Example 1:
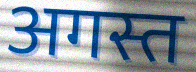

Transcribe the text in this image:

अगस्‍त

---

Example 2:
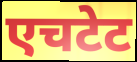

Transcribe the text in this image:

एचटेट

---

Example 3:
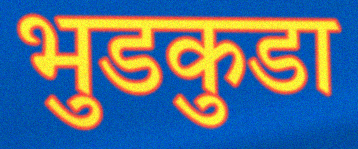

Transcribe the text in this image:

भुडकुडा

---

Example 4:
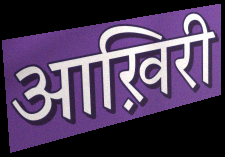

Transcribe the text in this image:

आख़िरी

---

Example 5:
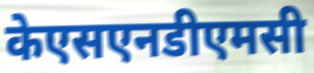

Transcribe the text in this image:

केएसएनडीएमसी